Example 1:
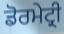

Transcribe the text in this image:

ਡੋਰਮੇਟ੍ਰੀ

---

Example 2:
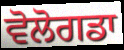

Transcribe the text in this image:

ਵੋਲੋਗਡਾ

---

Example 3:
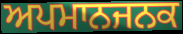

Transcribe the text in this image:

ਅਪਮਾਨਜਨਕ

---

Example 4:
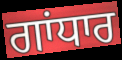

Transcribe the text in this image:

ਗਾਂਧਾਰ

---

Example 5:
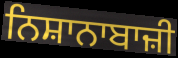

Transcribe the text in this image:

ਨਿਸ਼ਾਨਾਬਾਜ਼ੀ